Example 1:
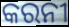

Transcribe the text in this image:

କରନୀ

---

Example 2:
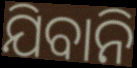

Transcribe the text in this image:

ଯିବାନି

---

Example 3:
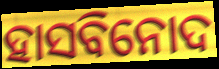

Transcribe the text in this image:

ହାସବିନୋଦ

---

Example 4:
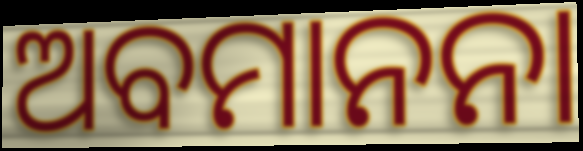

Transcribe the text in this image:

ଅବମାନନା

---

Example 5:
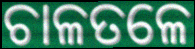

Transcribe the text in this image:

ଚାଳତଳେ